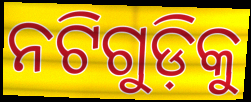
ନଟିଗୁଡ଼ିକୁ